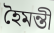
হৈমন্তী